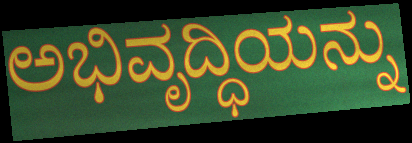
ಅಭಿವೃದ್ಧಿಯನ್ನು